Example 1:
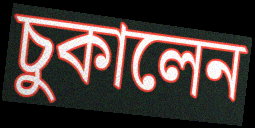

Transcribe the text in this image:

চুকালেন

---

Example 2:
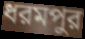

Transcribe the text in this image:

ধরমপুর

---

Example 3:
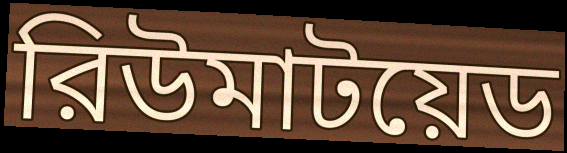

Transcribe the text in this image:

রিউমাটয়েড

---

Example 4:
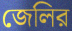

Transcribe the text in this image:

জেলির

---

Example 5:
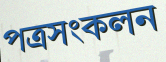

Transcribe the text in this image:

পত্রসংকলন